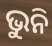
ଭୁନି